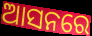
ଆସନରେ